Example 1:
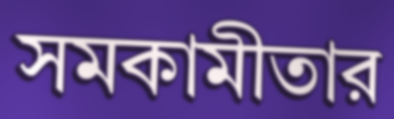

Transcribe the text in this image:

সমকামীতার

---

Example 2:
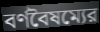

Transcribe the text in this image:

বর্ণবৈষম্যের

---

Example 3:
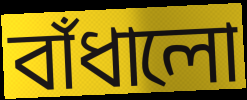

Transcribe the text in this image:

বাঁধালো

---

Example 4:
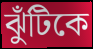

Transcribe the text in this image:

ঝুঁটিকে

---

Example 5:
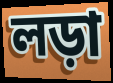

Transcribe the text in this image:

লড়া